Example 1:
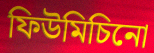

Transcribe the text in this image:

ফিউমিচিনো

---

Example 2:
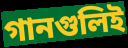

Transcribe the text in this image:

গানগুলিই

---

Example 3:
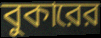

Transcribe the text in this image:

বুকারের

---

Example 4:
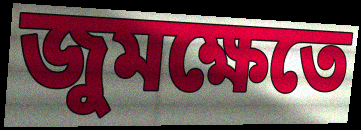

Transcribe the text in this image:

জুমক্ষেতে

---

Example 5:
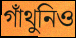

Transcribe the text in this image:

গাঁথুনিও